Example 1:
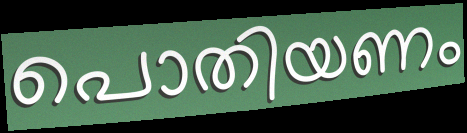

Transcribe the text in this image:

പൊതിയണം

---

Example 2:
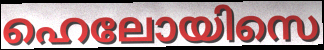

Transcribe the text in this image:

ഹെലോയിസെ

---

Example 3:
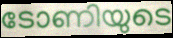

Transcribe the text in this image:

ടോണിയുടെ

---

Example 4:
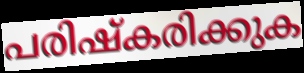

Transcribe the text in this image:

പരിഷ്കരിക്കുക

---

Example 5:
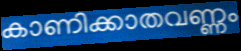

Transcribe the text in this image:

കാണിക്കാതവണ്ണം